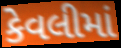
કેવલીમાં